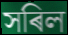
সৰিল